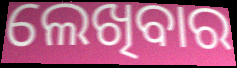
ଲେଖିବାର